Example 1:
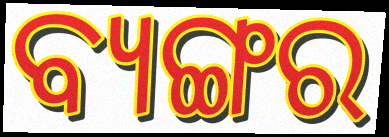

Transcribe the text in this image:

ବ୍ୟଙ୍ଗର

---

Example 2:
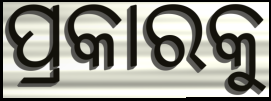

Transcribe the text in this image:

ପ୍ରକାରକୁ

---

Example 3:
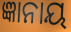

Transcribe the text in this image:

ଜ୍ଞାନାୟ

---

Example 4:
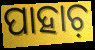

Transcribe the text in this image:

ପାହାଚ଼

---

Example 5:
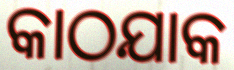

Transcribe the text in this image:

କାଠଯାକ